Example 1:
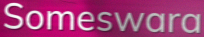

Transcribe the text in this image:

Someswara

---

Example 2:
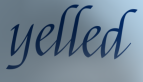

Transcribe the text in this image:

yelled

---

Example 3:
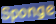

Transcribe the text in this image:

Sponge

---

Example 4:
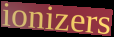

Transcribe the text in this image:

ionizers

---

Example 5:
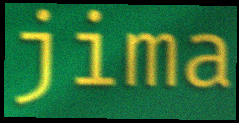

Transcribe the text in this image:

jima